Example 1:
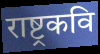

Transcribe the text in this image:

राष्ट्रकवि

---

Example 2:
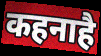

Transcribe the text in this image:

कहनाहै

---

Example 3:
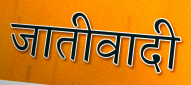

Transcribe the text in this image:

जातीवादी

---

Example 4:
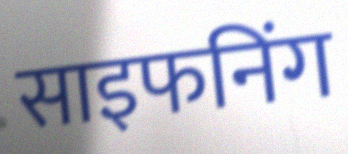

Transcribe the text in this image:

साइफनिंग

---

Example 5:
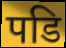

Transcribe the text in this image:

पडि